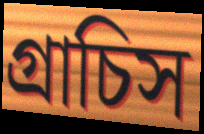
গ্রাচিস